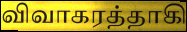
விவாகரத்தாகி